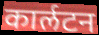
कार्लटन